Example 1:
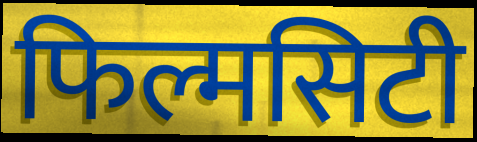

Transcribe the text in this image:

फिल्मसिटी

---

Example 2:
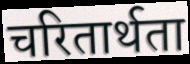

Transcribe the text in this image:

चरितार्थता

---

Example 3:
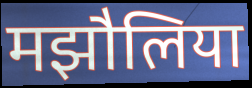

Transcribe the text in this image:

मझौलिया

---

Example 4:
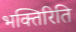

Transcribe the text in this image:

भक्तिरिति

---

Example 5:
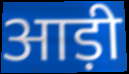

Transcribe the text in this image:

आड़ी